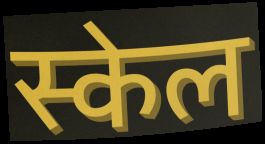
स्केल